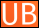
UB